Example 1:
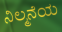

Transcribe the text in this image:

ನಿಲ್ಮನೆಯ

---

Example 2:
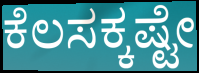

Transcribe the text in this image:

ಕೆಲಸಕ್ಕಷ್ಟೇ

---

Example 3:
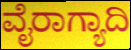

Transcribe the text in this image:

ವೈರಾಗ್ಯಾದಿ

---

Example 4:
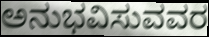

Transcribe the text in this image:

ಅನುಭವಿಸುವವರ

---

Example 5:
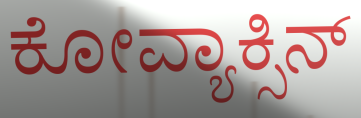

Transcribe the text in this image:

ಕೋವ್ಯಾಕ್ಸಿನ್